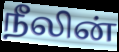
நீலின்